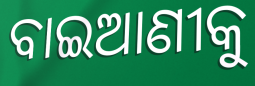
ବାଇଆଣୀକୁ